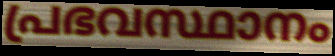
പ്രഭവസ്ഥാനം